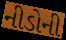
નીડોની